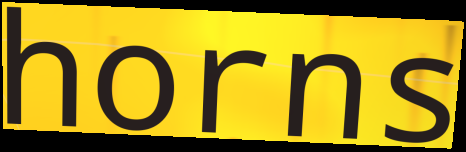
horns